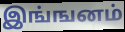
இங்ஙனம்